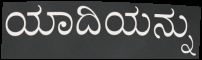
ಯಾದಿಯನ್ನು